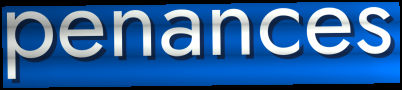
penances